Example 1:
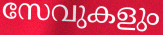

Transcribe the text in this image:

സേവുകളും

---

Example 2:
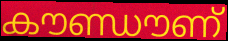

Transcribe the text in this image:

കൗണ്ഡൗണ്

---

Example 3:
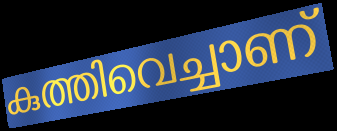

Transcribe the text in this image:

കുത്തിവെച്ചാണ്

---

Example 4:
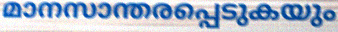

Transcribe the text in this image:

മാനസാന്തരപ്പെടുകയും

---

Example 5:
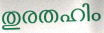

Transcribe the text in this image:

തുരതഹിം